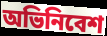
অভিনিবেশ